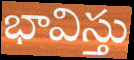
భావిస్తు